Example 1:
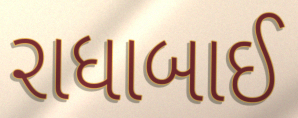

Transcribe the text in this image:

રાધાબાઈ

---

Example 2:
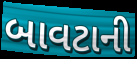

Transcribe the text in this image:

બાવટાની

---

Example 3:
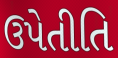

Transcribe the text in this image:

ઉપેતીતિ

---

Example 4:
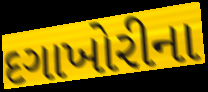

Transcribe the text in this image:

દગાખોરીના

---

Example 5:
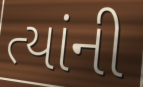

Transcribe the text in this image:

ત્યાંની